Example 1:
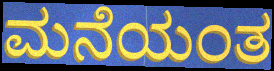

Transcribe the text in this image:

ಮನೆಯಂತ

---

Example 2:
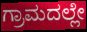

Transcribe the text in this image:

ಗ್ರಾಮದಲ್ಲೇ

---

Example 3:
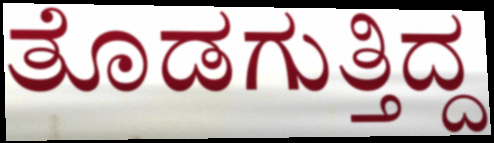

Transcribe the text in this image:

ತೊಡಗುತ್ತಿದ್ದ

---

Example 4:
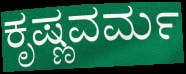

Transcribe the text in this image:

ಕೃಷ್ಣವರ್ಮ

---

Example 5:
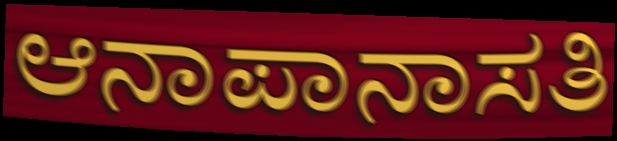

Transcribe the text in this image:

ಆನಾಪಾನಾಸತಿ